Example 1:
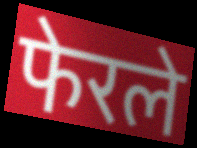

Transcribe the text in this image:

फेरले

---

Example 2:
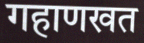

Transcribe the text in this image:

गहाणखत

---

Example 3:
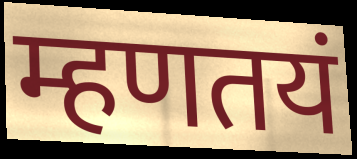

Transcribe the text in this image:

म्हणतयं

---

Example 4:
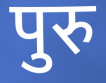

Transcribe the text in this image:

पुरु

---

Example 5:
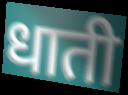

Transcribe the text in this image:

धाती